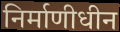
निर्माणीधीन